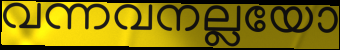
വന്നവനല്ലയോ